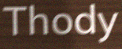
Thody